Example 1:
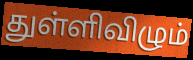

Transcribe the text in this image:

துள்ளிவிழும்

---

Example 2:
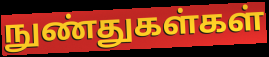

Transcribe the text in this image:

நுண்துகள்கள்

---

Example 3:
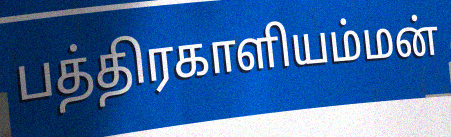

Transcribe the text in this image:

பத்திரகாளியம்மன்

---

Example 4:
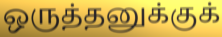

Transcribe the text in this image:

ஒருத்தனுக்குக்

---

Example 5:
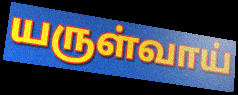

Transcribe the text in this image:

யருள்வாய்